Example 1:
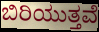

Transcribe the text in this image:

ಬಿರಿಯುತ್ತವೆ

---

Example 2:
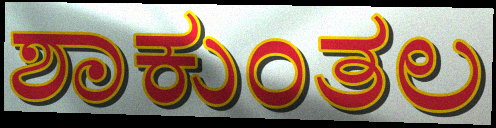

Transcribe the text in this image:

ಶಾಕುಂತಲ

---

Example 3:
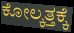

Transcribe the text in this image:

ಕೋಲ್ಕತ್ತಕ್ಕೆ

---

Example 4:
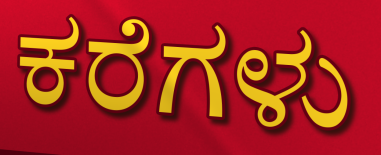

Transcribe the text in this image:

ಕರೆಗಳು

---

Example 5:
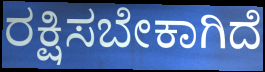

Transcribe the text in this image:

ರಕ್ಷಿಸಬೇಕಾಗಿದೆ